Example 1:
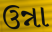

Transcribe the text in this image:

ઉન્ના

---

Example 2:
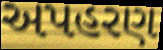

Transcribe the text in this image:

અપહરણ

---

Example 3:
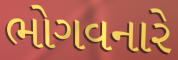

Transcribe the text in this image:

ભોગવનારે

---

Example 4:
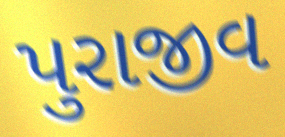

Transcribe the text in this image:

પુરાજીવ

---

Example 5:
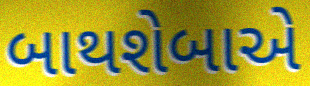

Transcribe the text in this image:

બાથશેબાએ